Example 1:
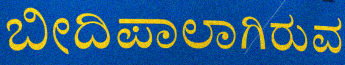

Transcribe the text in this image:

ಬೀದಿಪಾಲಾಗಿರುವ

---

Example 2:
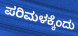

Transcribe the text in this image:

ಪರಿಮಳಕ್ಕೆಂದು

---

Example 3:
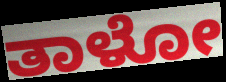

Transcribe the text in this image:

ತಾಳೋ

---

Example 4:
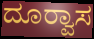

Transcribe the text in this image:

ದೂರ‍್ವಾಸ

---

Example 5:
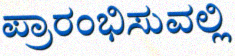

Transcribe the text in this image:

ಪ್ರಾರಂಭಿಸುವಲ್ಲಿ